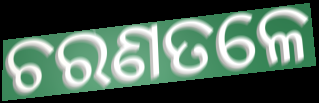
ଚରଣତଳେ